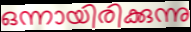
ഒന്നായിരിക്കുന്നു